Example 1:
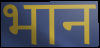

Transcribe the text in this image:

भान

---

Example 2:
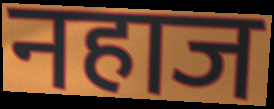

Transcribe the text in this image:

नहाज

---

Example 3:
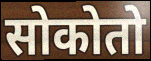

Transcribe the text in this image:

सोकोतो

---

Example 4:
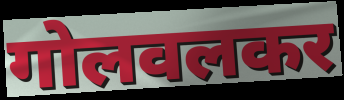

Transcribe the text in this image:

गोलवलकर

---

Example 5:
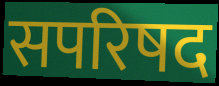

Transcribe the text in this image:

सपरिषद